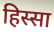
हिस्सा